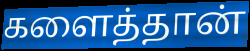
களைத்தான்